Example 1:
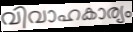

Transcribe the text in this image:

വിവാഹകാര്യം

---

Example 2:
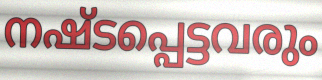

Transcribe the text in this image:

നഷ്ടപ്പെട്ടവരും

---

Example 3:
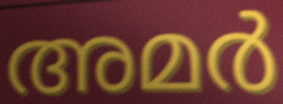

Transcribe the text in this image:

അമർ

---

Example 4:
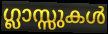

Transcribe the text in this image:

ഗ്ലാസ്സുകൾ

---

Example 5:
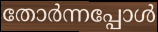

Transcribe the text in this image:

തോർന്നപ്പോൾ